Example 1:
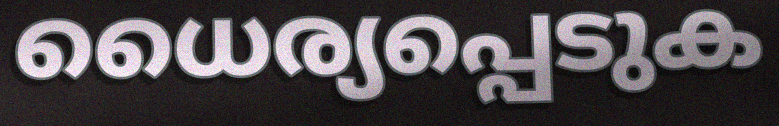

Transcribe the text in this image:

ധൈര്യപ്പെടുക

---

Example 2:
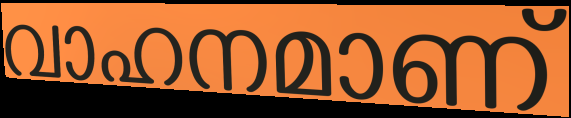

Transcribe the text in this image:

വാഹനമാണ്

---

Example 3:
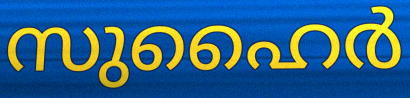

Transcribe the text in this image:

സുഹൈർ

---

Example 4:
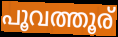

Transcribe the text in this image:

പൂവത്തൂര്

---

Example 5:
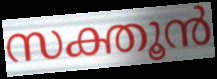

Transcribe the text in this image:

സക്തൂൻ